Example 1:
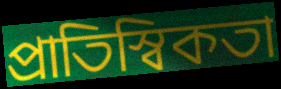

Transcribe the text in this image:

প্রাতিস্বিকতা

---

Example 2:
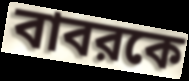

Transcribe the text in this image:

বাবরকে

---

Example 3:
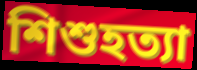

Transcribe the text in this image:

শিশুহত্যা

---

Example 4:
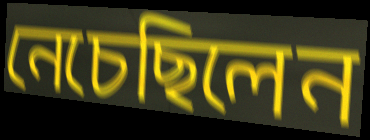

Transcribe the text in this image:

নেচেছিলেন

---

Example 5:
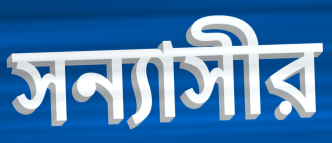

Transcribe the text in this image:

সন্যাসীর